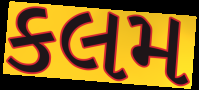
કલમ